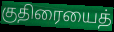
குதிரையைத்